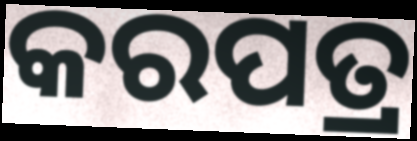
କରପତ୍ର